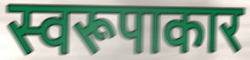
स्वरूपाकार